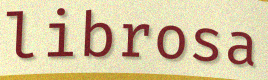
librosa